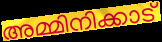
അമ്മിനിക്കാട്